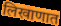
लिखाणात